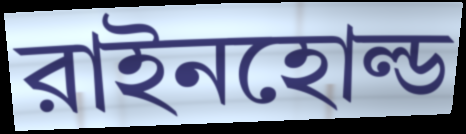
রাইনহোল্ড